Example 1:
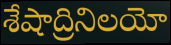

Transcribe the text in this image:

శేషాద్రినిలయో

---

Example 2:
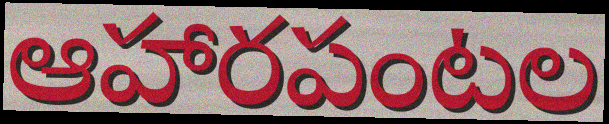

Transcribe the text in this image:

ఆహారపంటల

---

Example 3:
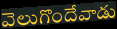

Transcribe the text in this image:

వెలుగొందేవాడు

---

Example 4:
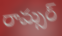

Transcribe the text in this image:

రామ్సర్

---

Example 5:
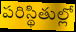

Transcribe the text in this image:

పరిస్థితుల్లో